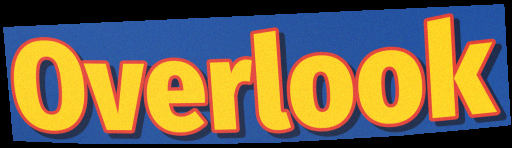
Overlook